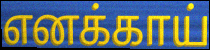
எனக்காய்